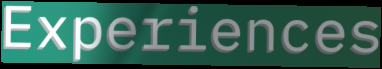
Experiences